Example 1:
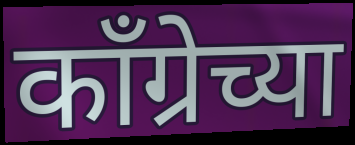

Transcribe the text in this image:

काँग्रेच्या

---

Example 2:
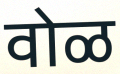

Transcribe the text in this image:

वोळ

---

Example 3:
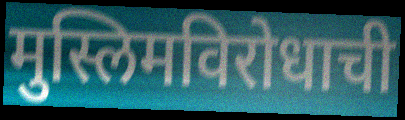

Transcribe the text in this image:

मुस्लिमविरोधाची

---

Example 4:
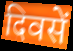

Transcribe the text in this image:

दिवसें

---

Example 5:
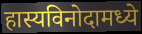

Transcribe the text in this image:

हास्यविनोदामध्ये